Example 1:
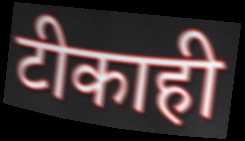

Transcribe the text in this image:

टीकाही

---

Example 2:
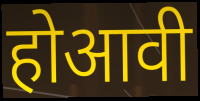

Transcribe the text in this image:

होआवी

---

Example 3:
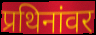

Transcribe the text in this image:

प्रथिनांवर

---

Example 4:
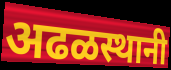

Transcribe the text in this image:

अढळस्थानी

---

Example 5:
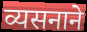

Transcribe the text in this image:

व्यसनाने